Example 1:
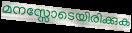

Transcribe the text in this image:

മനസ്സോടെയിരിക്കുക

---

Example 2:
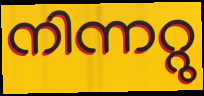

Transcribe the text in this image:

നിന്നറ്റു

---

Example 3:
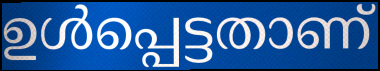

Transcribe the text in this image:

ഉൾപ്പെട്ടതാണ്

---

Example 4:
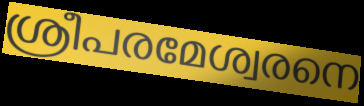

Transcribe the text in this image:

ശ്രീപരമേശ്വരനെ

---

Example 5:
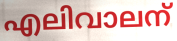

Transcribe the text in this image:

എലിവാലന്